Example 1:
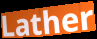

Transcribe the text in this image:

Lather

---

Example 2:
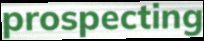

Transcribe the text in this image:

prospecting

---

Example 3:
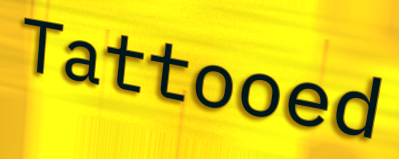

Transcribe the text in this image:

Tattooed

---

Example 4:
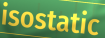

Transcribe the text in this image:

isostatic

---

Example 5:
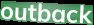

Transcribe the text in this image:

outback